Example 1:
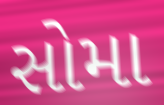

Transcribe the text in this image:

સોમા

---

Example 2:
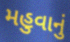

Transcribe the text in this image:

મહુવાનું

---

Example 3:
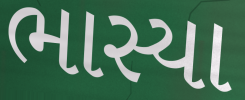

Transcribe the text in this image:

ભાસ્યા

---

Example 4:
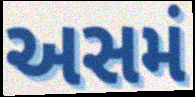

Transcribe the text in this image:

અસમં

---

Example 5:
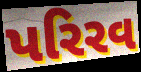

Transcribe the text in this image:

પરિરવ